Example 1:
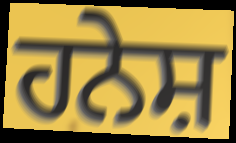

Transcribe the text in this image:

ਹਨੇਸ਼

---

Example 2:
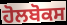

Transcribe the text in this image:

ਹੋਲਬੋਕਸ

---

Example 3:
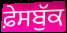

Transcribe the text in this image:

ਫ਼ੇਸਬੁੱਕ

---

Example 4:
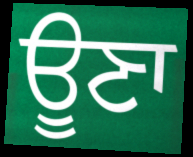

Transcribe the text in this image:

ਊਣਾ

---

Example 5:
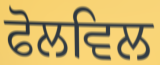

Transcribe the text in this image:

ਫੋਲਵਿਲ